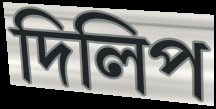
দিলিপ